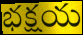
భక్షయ